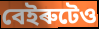
বেইৰুটেও